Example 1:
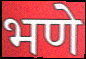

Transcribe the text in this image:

भणे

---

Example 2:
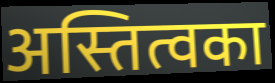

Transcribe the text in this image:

अस्तित्वका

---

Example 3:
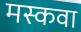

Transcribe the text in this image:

मस्कवा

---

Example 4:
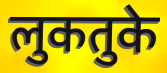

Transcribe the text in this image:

लुकतुके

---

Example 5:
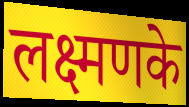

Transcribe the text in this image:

लक्ष्मणके